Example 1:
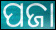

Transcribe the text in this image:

ପଜା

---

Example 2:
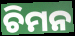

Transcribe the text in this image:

ଚିମନ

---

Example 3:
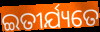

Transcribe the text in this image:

ଇତୀର୍ଯ୍ୟତେ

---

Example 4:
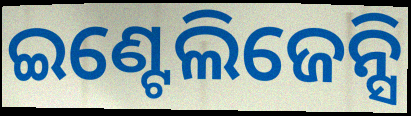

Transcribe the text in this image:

ଇଣ୍ଟେଲିଜେନ୍ସି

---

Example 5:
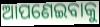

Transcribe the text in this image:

ଆପଣେଇବାକୁ